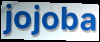
jojoba